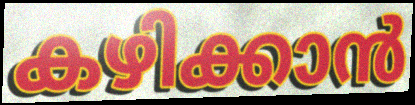
കഴിക്കാൻ